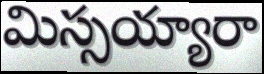
మిస్సయ్యారా